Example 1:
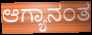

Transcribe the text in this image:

ಆಗ್ಯಾನಂತ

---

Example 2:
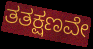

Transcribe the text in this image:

ತತಕ್ಷಣವೇ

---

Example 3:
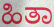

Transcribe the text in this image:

ಹಿತಾ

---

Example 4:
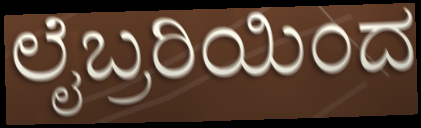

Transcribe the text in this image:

ಲೈಬ್ರರಿಯಿಂದ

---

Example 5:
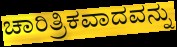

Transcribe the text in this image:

ಚಾರಿತ್ರಿಕವಾದವನ್ನು